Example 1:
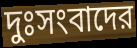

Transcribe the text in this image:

দুঃসংবাদের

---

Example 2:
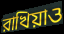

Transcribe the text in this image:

রাখিয়াও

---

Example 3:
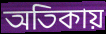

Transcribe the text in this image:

অতিকায়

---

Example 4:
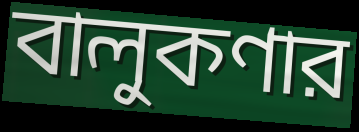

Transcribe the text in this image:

বালুকণার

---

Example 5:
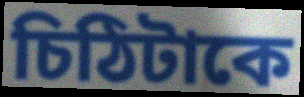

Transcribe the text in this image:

চিঠিটাকে